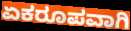
ಏಕರೂಪವಾಗಿ